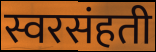
स्वरसंहती